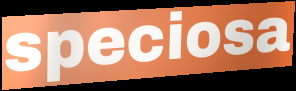
speciosa